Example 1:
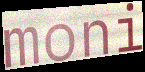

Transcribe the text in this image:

moni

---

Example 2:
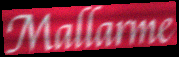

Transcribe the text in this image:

Mallarme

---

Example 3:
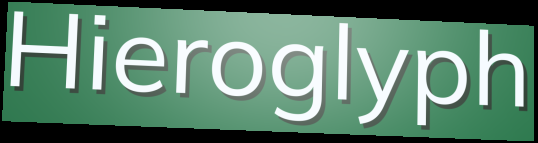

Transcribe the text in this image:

Hieroglyph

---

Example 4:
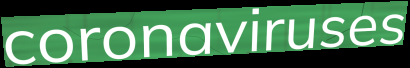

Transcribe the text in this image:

coronaviruses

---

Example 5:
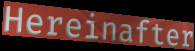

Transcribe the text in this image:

Hereinafter